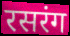
रसरंग